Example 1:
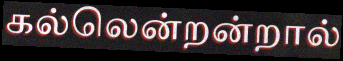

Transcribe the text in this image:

கல்லென்றன்றால்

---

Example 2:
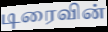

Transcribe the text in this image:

டிரைவின்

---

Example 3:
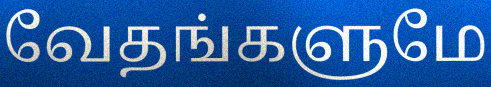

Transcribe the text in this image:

வேதங்களுமே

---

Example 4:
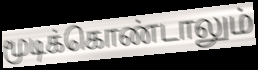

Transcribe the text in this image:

மூடிக்கொண்டாலும்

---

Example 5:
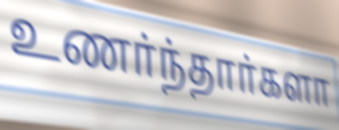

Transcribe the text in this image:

உணர்ந்தார்களா